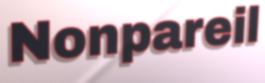
Nonpareil